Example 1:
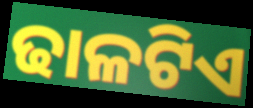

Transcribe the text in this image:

ଢାଳଟିଏ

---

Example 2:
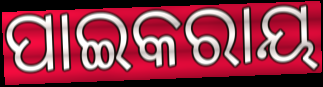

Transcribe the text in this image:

ପାଇକରାୟ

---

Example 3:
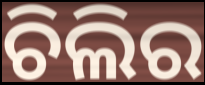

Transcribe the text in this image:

ଚିଲିର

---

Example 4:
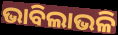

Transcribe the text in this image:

ଭାବିଲାଭଳି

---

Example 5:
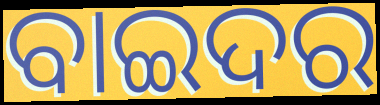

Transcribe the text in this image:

ବାଇଦର